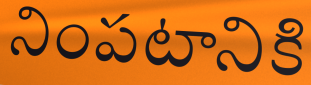
నింపటానికి